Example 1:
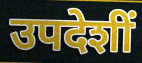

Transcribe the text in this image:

उपदेशीं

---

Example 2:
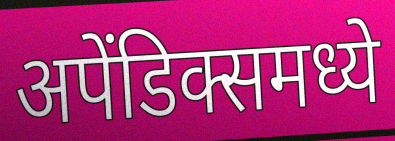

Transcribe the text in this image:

अपेंडिक्समध्ये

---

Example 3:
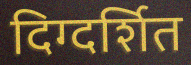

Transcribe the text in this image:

दिग्दर्शित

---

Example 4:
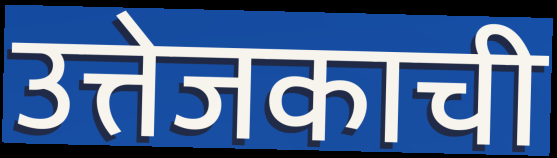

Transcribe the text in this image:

उत्तेजकाची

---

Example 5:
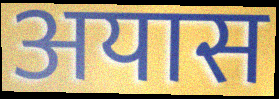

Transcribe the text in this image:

अयास